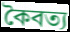
কৈবত্য